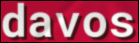
davos